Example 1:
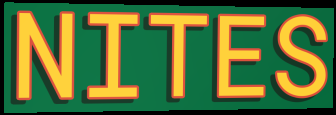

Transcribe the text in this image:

NITES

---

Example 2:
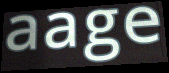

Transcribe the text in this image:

aage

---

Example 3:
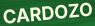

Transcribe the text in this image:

CARDOZO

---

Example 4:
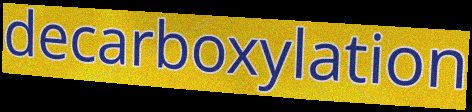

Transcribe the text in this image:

decarboxylation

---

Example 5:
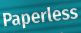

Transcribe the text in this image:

Paperless